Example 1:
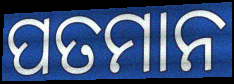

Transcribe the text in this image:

ପତମାନ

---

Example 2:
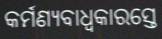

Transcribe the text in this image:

କର୍ମଣ୍ୟବାଧ୍ୱକାରସ୍ତେ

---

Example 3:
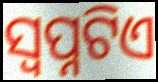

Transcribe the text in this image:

ସ୍ବପ୍ନଟିଏ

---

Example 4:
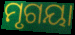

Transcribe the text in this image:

ମୃଗୟା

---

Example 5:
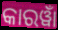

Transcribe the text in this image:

କାରୱାଁ